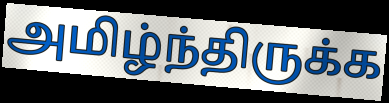
அமிழ்ந்திருக்க